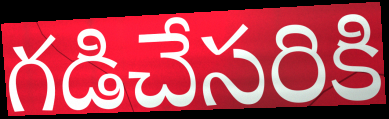
గడిచేసరికి